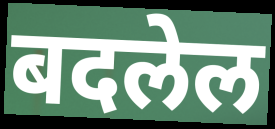
बदलेल